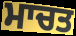
ਮਾਚਤ